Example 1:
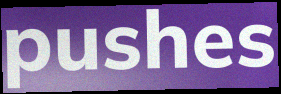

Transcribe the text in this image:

pushes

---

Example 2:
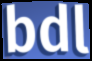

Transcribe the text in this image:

bdl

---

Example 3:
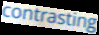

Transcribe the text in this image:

contrasting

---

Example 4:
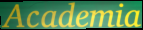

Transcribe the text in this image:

Academia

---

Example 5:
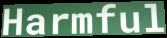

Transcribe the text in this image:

Harmful